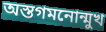
অস্তগমনোন্মুখ